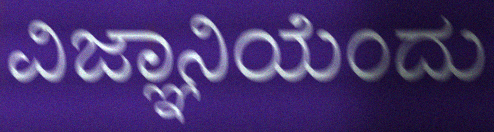
ವಿಜ್ಞಾನಿಯೆಂದು